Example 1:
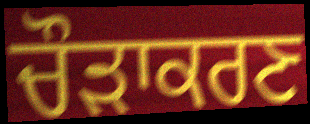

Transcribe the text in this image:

ਚੌੜਾਕਰਣ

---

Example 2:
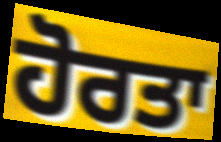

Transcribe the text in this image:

ਹੋਰਤਾ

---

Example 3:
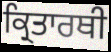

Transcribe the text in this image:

ਕ੍ਰਿਤਾਰਥੀ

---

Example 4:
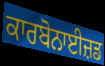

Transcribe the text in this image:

ਕਾਰਬੋਨਾਈਜ਼ਡ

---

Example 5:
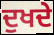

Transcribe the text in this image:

ਦੁਖਦੇ